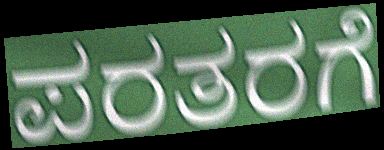
ಪರತರಗೆ